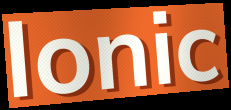
Ionic